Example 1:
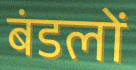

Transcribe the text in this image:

बंडलों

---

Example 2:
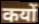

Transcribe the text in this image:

कयों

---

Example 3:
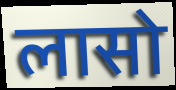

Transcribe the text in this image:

लासो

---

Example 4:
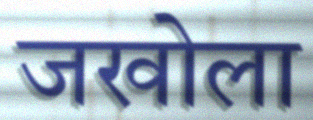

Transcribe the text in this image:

जखोला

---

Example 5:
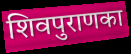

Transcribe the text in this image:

शिवपुराणका